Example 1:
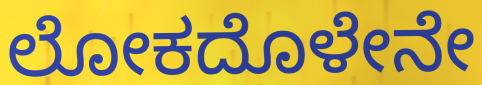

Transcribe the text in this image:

ಲೋಕದೊಳೇನೇ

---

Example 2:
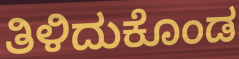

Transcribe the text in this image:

ತಿಳಿದುಕೊಂಡ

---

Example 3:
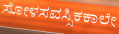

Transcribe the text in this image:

ಸೋಳಸವಸ್ಸಿಕಕಾಲೇ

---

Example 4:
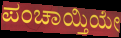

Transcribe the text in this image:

ಪಂಚಾಯ್ತಿಯೇ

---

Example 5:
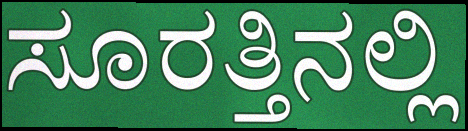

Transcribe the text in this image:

ಸೂರತ್ತಿನಲ್ಲಿ